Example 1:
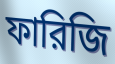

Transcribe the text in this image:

ফারিজি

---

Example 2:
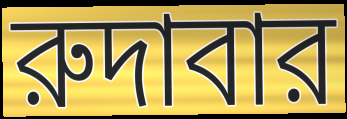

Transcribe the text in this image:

রুদাবার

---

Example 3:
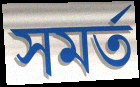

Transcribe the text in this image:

সমর্ত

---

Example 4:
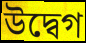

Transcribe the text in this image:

উদ্বেগ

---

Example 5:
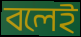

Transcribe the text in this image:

বলেই